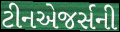
ટીનએજર્સની